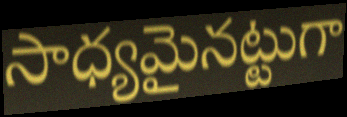
సాధ్యమైనట్టుగా